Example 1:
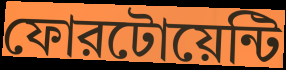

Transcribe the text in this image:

ফোরটোয়েন্টি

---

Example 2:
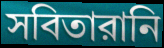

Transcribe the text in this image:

সবিতারানি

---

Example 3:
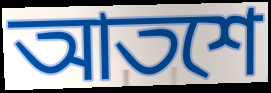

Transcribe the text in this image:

আতশে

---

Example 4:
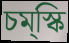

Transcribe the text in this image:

চম্‌স্কি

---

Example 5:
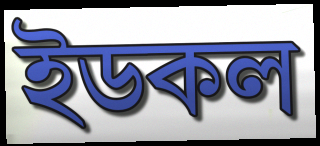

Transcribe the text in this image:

ইডকল